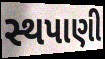
સ્થપાણી